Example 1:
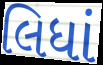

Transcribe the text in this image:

લિધાં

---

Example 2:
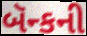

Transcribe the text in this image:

બૅન્કની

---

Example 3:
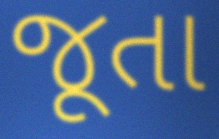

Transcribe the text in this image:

જૂતા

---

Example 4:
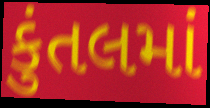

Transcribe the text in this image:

કુંતલમાં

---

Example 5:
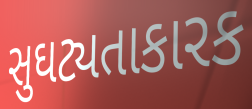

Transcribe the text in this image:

સુઘટ્યતાકારક